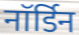
नॉर्डिन